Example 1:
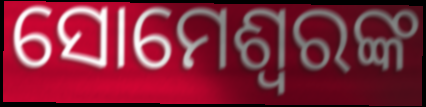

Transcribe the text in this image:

ସୋମେଶ୍ୱରଙ୍କ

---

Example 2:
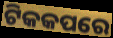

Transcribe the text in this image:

ଟିକକପରେ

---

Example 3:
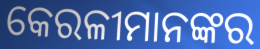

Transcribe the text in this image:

କେରଳୀମାନଙ୍କର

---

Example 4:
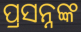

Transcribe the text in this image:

ପ୍ରସନ୍ନଙ୍କ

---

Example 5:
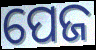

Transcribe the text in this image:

ପେଜ